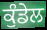
ਕੁੰਡੇਲ